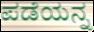
ಪಡೆಯನ್ನ